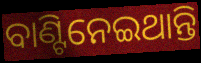
ବାଣ୍ଟିନେଇଥାନ୍ତି